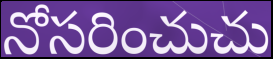
నోసరించుచు